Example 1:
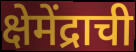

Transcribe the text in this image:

क्षेमेंद्राची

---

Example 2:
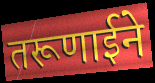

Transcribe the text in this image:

तरूणाईने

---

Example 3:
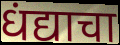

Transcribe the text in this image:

धंद्याचा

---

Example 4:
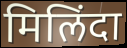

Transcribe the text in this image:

मिलिंदा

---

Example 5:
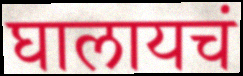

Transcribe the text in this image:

घालायचं